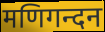
मणिगन्दन